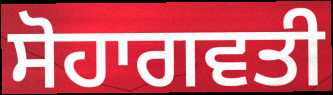
ਸੋਹਾਗਵਤੀ